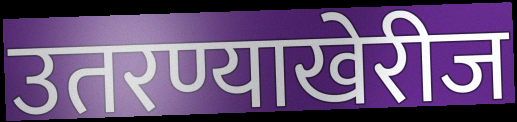
उतरण्याखेरीज